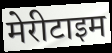
मेरीटाइम